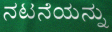
ನಟನೆಯನ್ನು